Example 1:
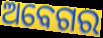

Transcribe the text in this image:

ଅବେଗର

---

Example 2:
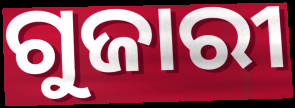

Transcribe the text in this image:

ଗୁଜାରୀ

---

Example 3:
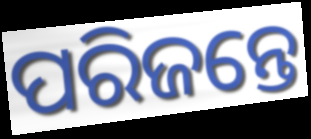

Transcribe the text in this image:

ପରିଜନ୍ତେ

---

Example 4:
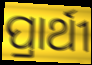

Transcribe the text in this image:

ପ୍ରାର୍ଥୀ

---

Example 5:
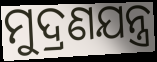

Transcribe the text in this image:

ମୁଦ୍ରଣଯନ୍ତ୍ର